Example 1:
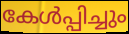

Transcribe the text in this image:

കേൾപ്പിച്ചും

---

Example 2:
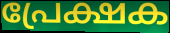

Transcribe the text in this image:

പ്രേക്ഷക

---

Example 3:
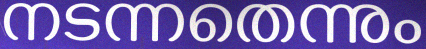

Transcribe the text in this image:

നടന്നതെന്നും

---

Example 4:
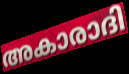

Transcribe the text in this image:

അകാരാദി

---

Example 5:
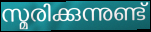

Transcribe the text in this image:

സ്മരിക്കുന്നുണ്ട്